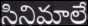
సినిమాలే